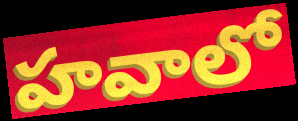
హవాలో